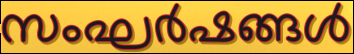
സംഘർഷങ്ങൾ